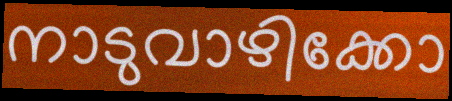
നാടുവാഴിക്കോ